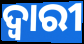
ଦ୍ଵାରୀ